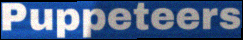
Puppeteers